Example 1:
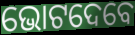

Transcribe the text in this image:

ଭୋଟଦେବେ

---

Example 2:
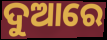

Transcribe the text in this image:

ଦୁଆରେ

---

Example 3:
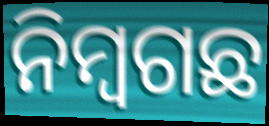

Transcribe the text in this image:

ନିମ୍ୱଗଛ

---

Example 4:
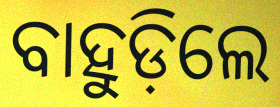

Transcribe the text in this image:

ବାହୁଡ଼ିଲେ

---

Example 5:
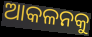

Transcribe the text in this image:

ଆକଳନକୁ